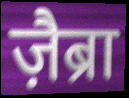
ज़ैब्रा